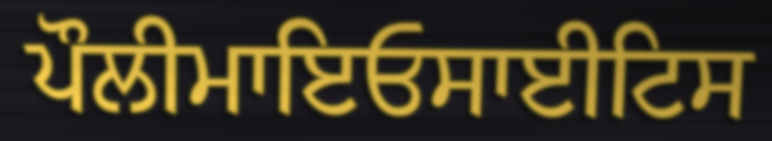
ਪੌਲੀਮਾਇਓਸਾਈਟਿਸ